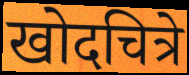
खोदचित्रे